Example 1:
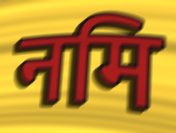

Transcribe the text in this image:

नमि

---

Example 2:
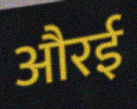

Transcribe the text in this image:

औरई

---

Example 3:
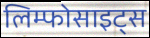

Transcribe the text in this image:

लिम्फोसाइट्स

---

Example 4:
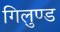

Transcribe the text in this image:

गिलुण्ड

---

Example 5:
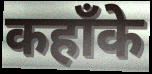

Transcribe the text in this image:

कहाँके